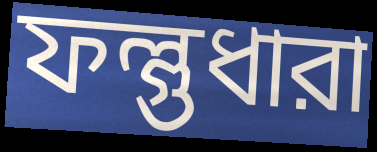
ফল্গুধারা